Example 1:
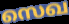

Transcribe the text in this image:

സെഖ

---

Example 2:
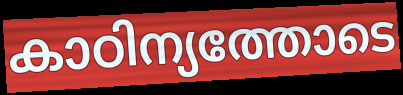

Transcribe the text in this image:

കാഠിന്യത്തോടെ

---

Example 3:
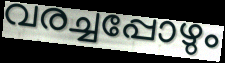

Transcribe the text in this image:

വരച്ചപ്പോഴും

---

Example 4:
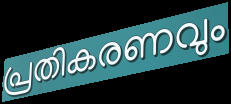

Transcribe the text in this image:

പ്രതികരണവും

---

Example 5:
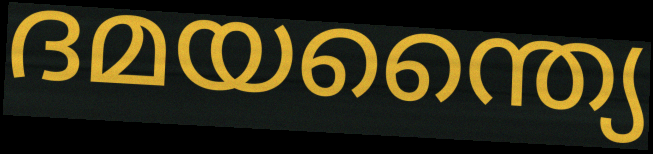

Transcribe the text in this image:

ദമയന്ത്യൈ